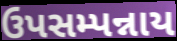
ઉપસમ્પન્નાય